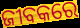
ଜୀବକରେ